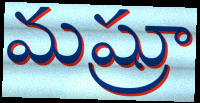
మష్రూ